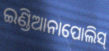
ଇଣ୍ଡିଆନାପୋଲିସ୍